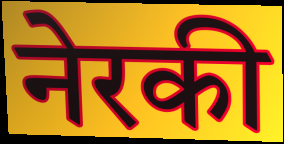
नेरकी